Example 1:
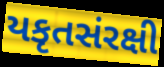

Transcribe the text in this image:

યકૃતસંરક્ષી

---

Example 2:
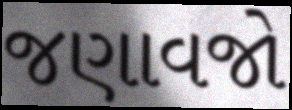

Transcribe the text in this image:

જણાવજો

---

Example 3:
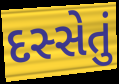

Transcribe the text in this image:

દસ્સેતું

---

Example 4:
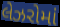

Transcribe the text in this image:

લેઝરોમાં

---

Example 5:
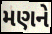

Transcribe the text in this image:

મણને